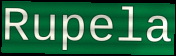
Rupela